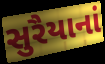
સુરૈયાનાં